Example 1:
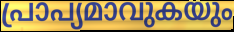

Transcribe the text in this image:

പ്രാപ്യമാവുകയും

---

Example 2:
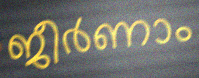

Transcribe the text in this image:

ജീർണാം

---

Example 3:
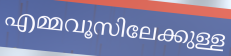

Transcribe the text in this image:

എമ്മവൂസിലേക്കുള്ള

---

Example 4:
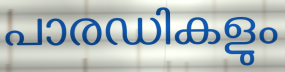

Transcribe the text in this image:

പാരഡികളും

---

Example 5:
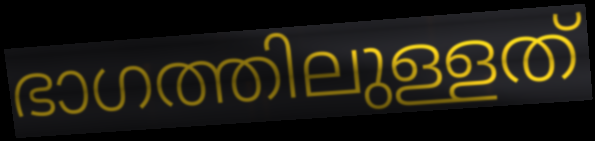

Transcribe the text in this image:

ഭാഗത്തിലുള്ളത്